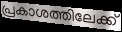
പ്രകാശത്തിലേക്ക്